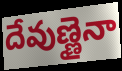
దేవుణ్ణైనా